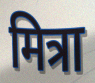
मित्रा